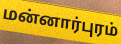
மன்னார்புரம்